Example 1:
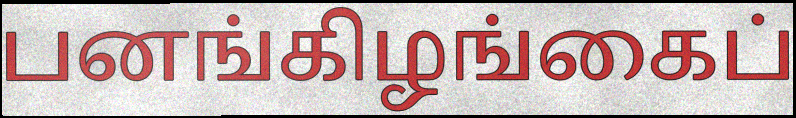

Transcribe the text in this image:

பனங்கிழங்கைப்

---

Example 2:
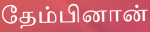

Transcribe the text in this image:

தேம்பினான்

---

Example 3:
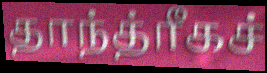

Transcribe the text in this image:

தாந்த்ரீகச்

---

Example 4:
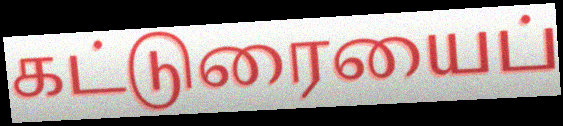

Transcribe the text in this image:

கட்டுரையைப்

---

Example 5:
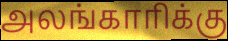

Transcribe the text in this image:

அலங்காரிக்கு